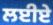
ਲਈਏ